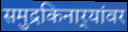
समुद्रकिनार्यांवर